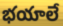
భయాలే